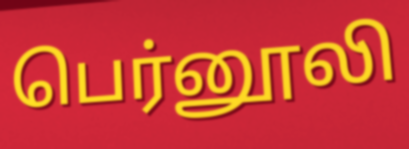
பெர்னூலி